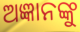
ଅଜ୍ଞାନଙ୍କୁ